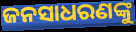
ଜନସାଧରଣଙ୍କୁ